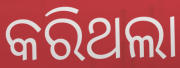
କରିଥଲା